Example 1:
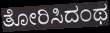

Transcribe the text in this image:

ತೋರಿಸಿದಂಥ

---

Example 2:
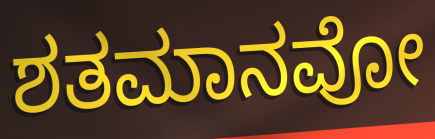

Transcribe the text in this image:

ಶತಮಾನವೋ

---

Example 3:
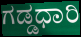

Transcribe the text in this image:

ಗಡ್ಡಧಾರಿ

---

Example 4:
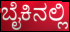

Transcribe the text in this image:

ಬೈಕಿನಲ್ಲಿ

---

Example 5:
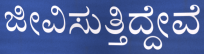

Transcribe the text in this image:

ಜೀವಿಸುತ್ತಿದ್ದೇವೆ